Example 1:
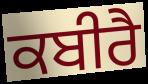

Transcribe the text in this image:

ਕਬੀਰੈ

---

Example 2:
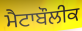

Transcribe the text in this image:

ਮੈਟਾਬੌਲੀਕ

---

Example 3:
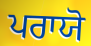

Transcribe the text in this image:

ਪਰਾਯੋ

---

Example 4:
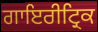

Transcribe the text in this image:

ਗਾਇਰੀਟ੍ਰਿਕ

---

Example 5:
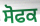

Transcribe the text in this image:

ਸੋਫਕ